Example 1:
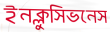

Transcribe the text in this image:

ইনক্লুসিভনেস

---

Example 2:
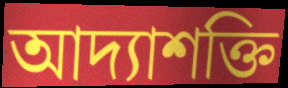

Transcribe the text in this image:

আদ্যাশক্তি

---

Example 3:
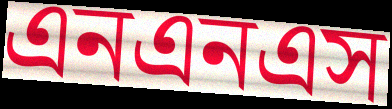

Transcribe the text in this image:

এনএনএস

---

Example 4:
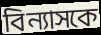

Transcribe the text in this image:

বিন্যাসকে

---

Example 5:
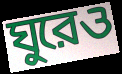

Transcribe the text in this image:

ঘুরেও